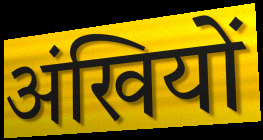
अंखियों